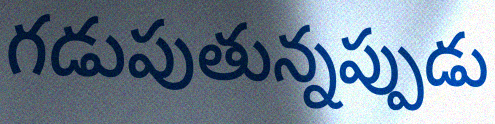
గడుపుతున్నప్పుడు